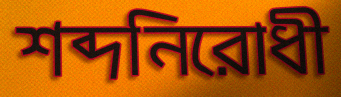
শব্দনিরোধী